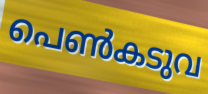
പെൺകടുവ